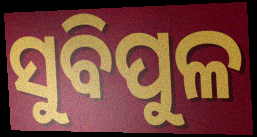
ସୁବିପୁଳ